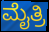
ಮೈತ್ರಿ